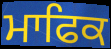
ਮਾਫਿਕ